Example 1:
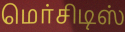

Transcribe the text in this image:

மெர்சிடிஸ்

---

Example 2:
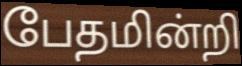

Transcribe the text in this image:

பேதமின்றி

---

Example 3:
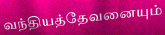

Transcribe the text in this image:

வந்தியத்தேவனையும்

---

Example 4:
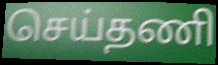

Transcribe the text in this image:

செய்தணி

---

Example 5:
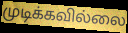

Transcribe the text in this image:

முடிக்கவில்லை